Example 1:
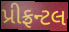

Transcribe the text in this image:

પ્રીફ્રન્ટલ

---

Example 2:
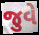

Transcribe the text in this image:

જુવે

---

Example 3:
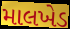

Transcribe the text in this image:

માલખેડ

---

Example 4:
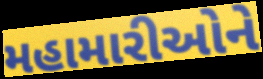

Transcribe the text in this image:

મહામારીઓને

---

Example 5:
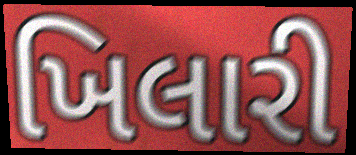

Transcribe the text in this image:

ખિલારી